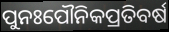
ପୁନଃପୌନିକପ୍ରତିବର୍ଷ